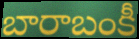
బారాబంకీ